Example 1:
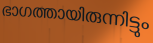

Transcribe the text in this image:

ഭാഗത്തായിരുന്നിട്ടും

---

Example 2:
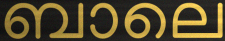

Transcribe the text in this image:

ബാലെ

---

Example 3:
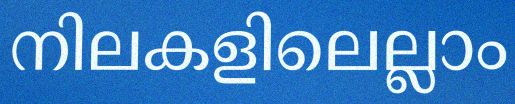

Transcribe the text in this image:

നിലകളിലെല്ലാം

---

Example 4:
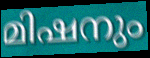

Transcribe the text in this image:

മിഷനും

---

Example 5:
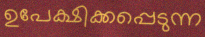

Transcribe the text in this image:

ഉപേക്ഷിക്കപ്പെടുന്ന